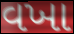
વખા